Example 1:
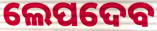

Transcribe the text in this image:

ଲେପଦେବ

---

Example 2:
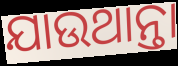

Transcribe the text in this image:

ଯାଉଥାନ୍ତା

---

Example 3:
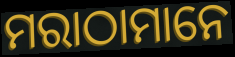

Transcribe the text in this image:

ମରାଠାମାନେ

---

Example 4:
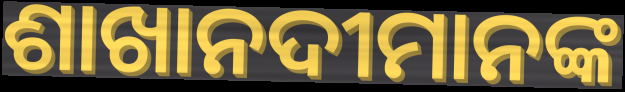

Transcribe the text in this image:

ଶାଖାନଦୀମାନଙ୍କ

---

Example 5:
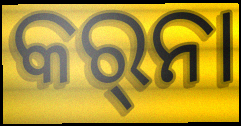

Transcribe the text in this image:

କର୍‌ନା